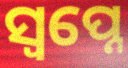
ସ୍ବପ୍ନେ